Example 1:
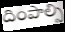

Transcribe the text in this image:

దింపాల్సి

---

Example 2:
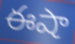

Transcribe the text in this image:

ఈషా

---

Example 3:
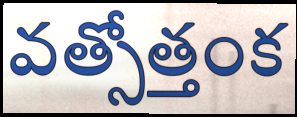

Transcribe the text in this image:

వత్సోత్తంక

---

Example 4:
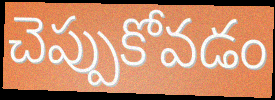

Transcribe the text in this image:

చెప్పుకోవడం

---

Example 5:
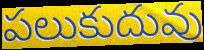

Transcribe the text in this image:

పలుకుదువు